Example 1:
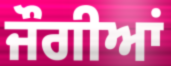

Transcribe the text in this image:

ਜੌਗੀਆਂ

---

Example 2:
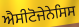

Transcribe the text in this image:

ਐਸੀਟੋਜੇਨੇਸਿਸ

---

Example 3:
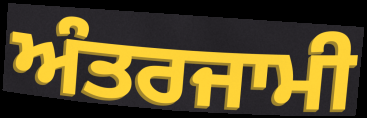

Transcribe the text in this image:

ਅੰਤਰਜਾਮੀ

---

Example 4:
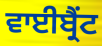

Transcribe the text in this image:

ਵਾਈਬ੍ਰੈਂਟ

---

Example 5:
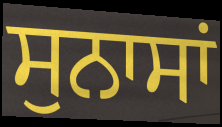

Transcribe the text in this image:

ਸੁਨਾਸਾਂ